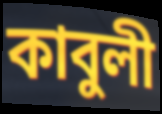
কাবুলী